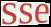
sse